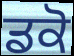
ਡਕੋ